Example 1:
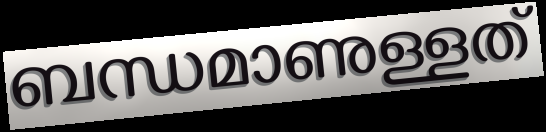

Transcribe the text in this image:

ബന്ധമാണുള്ളത്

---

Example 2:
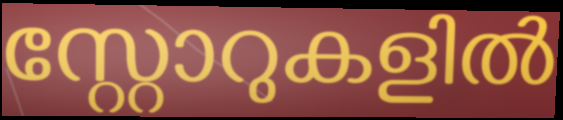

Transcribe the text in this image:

സ്റ്റോറുകളിൽ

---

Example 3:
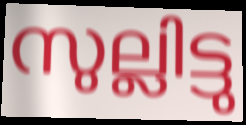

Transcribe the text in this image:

സുല്ലിട്ടു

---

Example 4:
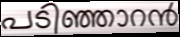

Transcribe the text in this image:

പടിഞ്ഞാറൻ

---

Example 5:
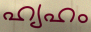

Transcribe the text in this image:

ഹ്യഹം